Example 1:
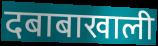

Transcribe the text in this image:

दबाबाखाली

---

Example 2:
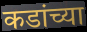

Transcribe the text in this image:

कडांच्या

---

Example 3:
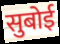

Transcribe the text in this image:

सुबोई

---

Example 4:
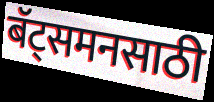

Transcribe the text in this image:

बॅट्समनसाठी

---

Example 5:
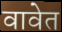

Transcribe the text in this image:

वावेत